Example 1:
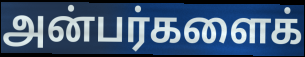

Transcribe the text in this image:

அன்பர்களைக்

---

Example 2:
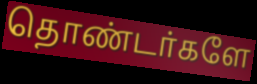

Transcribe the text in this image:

தொண்டர்களே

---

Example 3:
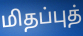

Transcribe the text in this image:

மிதப்புத்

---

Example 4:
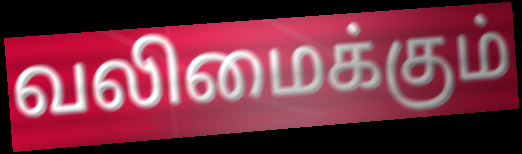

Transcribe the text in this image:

வலிமைக்கும்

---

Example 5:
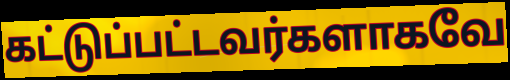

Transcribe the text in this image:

கட்டுப்பட்டவர்களாகவே